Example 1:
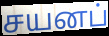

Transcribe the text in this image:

சயனப்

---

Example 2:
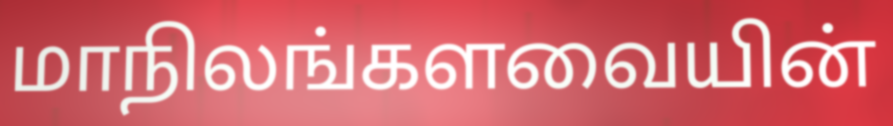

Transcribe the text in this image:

மாநிலங்களவையின்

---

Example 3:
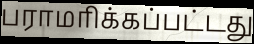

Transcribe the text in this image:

பராமரிக்கப்பட்டது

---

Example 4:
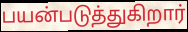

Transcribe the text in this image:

பயன்படுத்துகிறார்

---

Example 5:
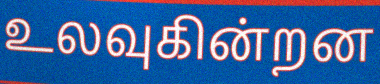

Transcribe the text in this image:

உலவுகின்றன